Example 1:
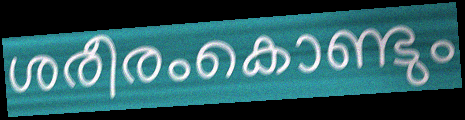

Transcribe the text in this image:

ശരീരംകൊണ്ടും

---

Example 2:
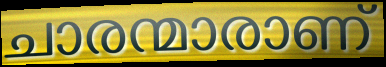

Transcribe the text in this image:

ചാരന്മാരാണ്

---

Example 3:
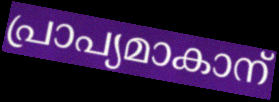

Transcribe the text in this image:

പ്രാപ്യമാകാന്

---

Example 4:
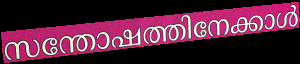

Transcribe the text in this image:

സന്തോഷത്തിനേക്കാൾ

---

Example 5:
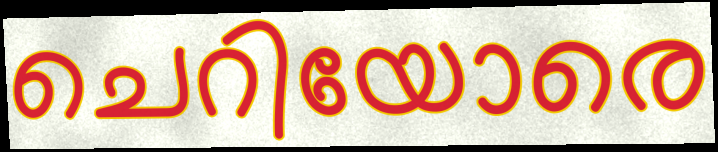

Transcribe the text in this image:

ചെറിയോരെ